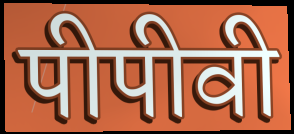
पीपीवी